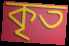
কৃত